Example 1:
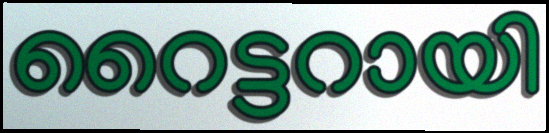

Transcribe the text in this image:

റൈട്ടറായി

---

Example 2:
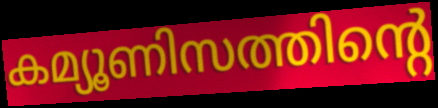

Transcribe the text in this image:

കമ്യൂണിസത്തിന്റെ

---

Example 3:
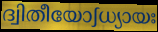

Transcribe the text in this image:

ദ്വിതീയോഽധ്യായഃ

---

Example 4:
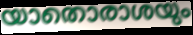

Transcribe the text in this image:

യാതൊരാശയും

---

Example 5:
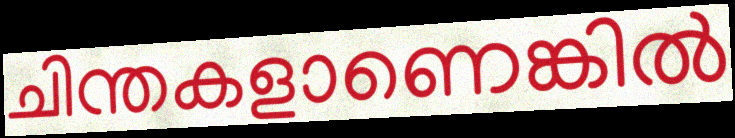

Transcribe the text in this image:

ചിന്തകളാണെങ്കിൽ